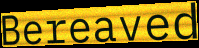
Bereaved